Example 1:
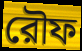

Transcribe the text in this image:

রৌফ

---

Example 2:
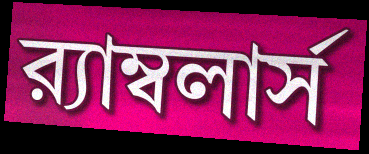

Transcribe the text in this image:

র‍্যাম্বলার্স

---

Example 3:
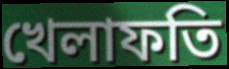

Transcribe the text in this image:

খেলাফতি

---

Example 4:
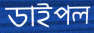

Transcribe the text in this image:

ডাইপল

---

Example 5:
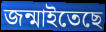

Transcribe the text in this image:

জন্মাইতেছে